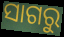
ସାଗରୁ